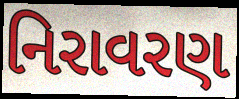
નિરાવરણ